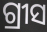
ଗ୍ରୀସ